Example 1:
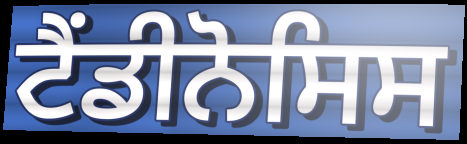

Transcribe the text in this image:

ਟੈਂਡੀਨੋਸਿਸ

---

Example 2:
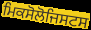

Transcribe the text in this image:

ਮਿਕਸੋਲੋਜਿਸਟਸ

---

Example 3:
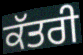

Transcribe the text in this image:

ਕੱਤਰੀ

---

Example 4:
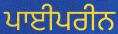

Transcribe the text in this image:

ਪਾਈਪਰੀਨ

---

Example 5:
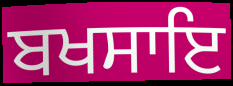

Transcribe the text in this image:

ਬਖਸਾਇ